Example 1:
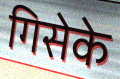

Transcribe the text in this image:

गिसेके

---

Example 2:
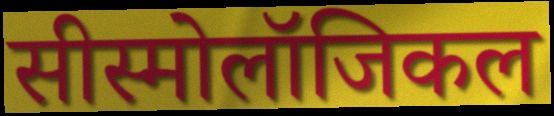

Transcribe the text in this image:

सीस्मोलॉजिकल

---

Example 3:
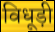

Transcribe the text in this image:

विधूड़ी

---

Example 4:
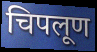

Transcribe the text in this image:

चिपलूण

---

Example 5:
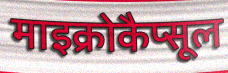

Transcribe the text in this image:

माइक्रोकैप्सूल